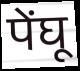
पेंघू